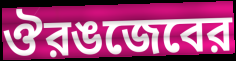
ঔরঙজেবের